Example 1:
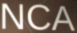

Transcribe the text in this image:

NCA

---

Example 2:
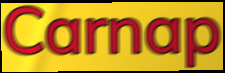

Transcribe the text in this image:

Carnap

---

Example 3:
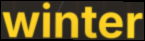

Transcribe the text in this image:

winter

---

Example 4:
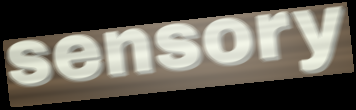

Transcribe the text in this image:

sensory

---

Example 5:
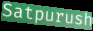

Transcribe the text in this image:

Satpurush